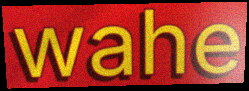
wahe